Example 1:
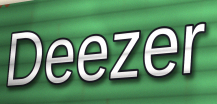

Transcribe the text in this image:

Deezer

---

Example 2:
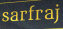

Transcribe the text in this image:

sarfraj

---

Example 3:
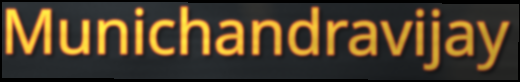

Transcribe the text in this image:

Munichandravijay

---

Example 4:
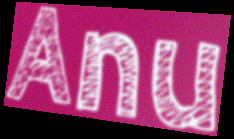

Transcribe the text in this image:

Anu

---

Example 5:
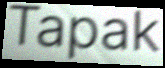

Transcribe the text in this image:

Tapak